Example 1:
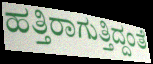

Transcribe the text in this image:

ಹತ್ತಿರಾಗುತ್ತಿದ್ದಂತೆ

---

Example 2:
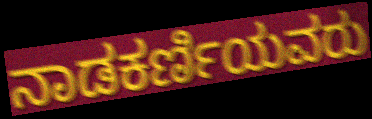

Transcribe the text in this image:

ನಾಡಕರ್ಣಿಯವರು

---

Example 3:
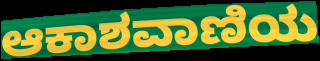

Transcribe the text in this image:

ಆಕಾಶವಾಣಿಯ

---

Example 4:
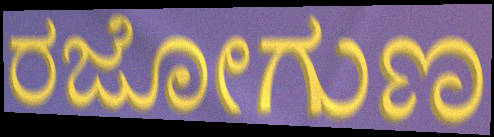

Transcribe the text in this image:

ರಜೋಗುಣ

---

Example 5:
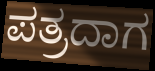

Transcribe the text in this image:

ಪತ್ರದಾಗ